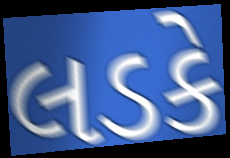
લડકે